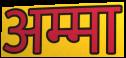
अम्मा